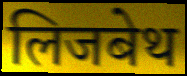
लिजबेथ